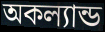
অকল্যান্ড